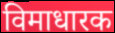
विमाधारक